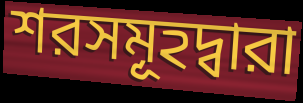
শরসমূহদ্বারা